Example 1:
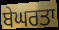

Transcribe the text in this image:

ਬੇਘਰਤਾ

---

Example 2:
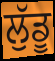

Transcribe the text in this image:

ਲੁੱਡੂ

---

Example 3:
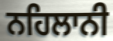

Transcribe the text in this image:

ਨਹਿਲਾਨੀ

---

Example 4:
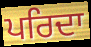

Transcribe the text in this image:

ਪਰਿਦਾ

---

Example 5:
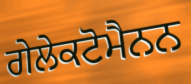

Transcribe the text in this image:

ਗੇਲੇਕਟੋਮੈਨਨ